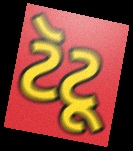
ટૅટૂ